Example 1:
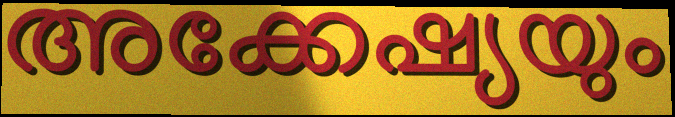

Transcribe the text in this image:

അക്കേഷ്യയും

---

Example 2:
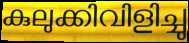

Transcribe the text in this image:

കുലുക്കിവിളിച്ചു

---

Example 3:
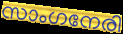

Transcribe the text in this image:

സാംഗനേരി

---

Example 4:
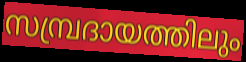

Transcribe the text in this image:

സമ്പ്രദായത്തിലും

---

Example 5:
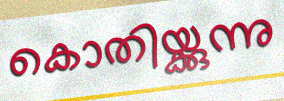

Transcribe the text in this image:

കൊതിയ്ക്കുന്നു